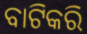
ବାଟିକରି